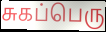
சுகப்பெரு